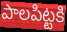
పాలపిట్టకి